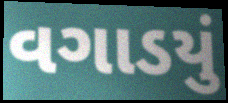
વગાડયું